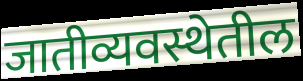
जातीव्यवस्थेतील